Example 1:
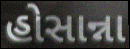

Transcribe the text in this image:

હોસાન્ના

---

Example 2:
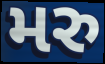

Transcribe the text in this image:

મરુ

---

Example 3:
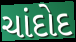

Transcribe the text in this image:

ચાંદોદ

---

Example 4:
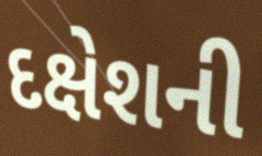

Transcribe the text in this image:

દક્ષેશની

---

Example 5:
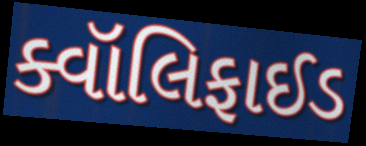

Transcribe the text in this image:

ક્વૉલિફાઈડ